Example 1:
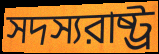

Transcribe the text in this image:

সদস্যরাষ্ট্র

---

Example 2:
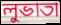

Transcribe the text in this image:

লুভাতা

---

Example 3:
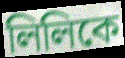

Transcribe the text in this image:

লিলিকে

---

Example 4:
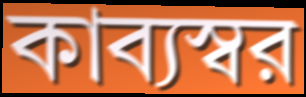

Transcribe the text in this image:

কাব্যস্বর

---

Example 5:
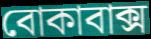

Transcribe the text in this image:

বোকাবাক্স